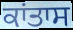
ਕਾਂਤਾਸ